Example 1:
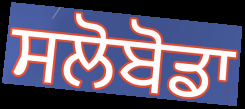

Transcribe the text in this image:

ਸਲੋਬੋਡਾ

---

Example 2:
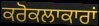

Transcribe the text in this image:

ਕਰੋਕਲਾਕਾਰਾਂ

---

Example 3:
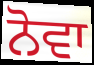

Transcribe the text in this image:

ਨੋਵਾ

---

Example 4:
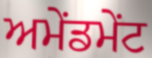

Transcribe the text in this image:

ਅਮੇਂਡਮੇਂਟ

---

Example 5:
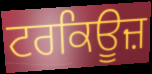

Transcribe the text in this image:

ਟਰਕਿਊਜ਼